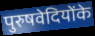
पुरुषवेदियोंके